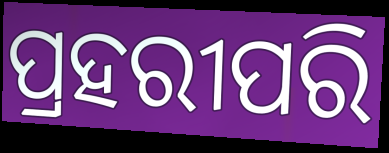
ପ୍ରହରୀପରି